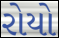
રોયો